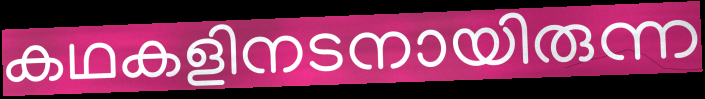
കഥകളിനടനായിരുന്ന